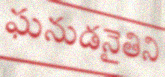
ఘనుడనైతిని